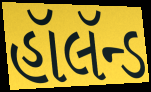
હૉલૅન્ડ